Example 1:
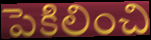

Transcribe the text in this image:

పెకిలించి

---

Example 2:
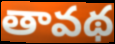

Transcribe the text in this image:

తావథ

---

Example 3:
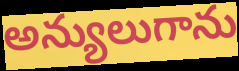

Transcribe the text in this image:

అన్యులుగాను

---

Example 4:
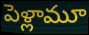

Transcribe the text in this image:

పెళ్లామూ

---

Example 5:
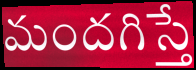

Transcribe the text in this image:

మందగిస్తే